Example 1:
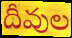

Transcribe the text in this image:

దీవుల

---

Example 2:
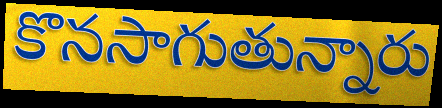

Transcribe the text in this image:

కొనసాగుతున్నారు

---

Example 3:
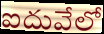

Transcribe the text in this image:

ఐదువేలో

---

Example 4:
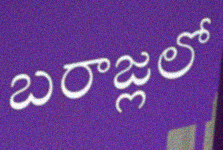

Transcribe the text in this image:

బరాజ్లలో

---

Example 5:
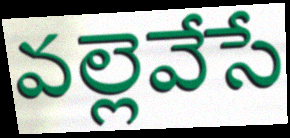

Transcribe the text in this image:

వల్లెవేసే